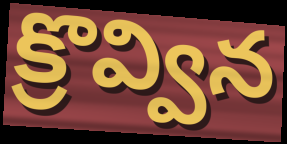
క్రొవ్విన